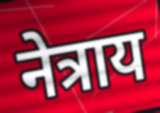
नेत्राय